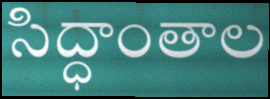
సిద్ధాంతాల